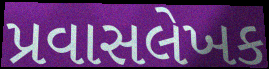
પ્રવાસલેખક